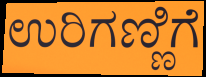
ಉರಿಗಣ್ಣಿಗೆ